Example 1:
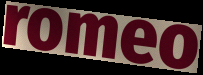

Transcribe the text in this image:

romeo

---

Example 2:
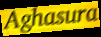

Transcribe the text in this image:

Aghasura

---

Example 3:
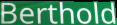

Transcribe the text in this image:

Berthold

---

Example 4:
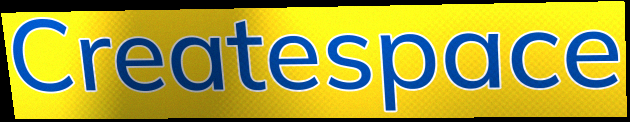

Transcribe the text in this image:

Createspace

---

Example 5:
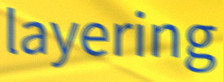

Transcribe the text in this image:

layering